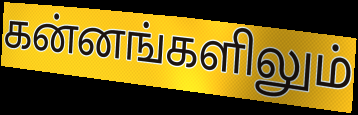
கன்னங்களிலும்